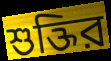
শুক্তির